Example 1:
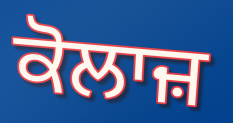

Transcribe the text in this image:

ਕੋਲਾਜ਼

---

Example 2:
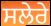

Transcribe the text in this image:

ਸਲੇਰੇ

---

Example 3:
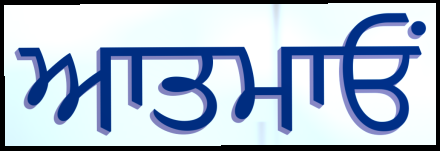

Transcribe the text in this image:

ਆਤਮਾਓਂ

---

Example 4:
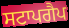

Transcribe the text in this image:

ਸਟਾਪਗੈਪ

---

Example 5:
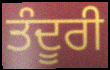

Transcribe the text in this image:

ਤੰਦੂਰੀ